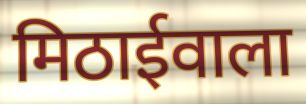
मिठाईवाला